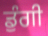
ਡੁੰਗੀ